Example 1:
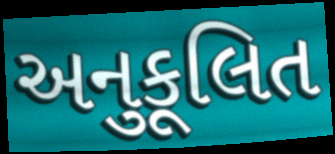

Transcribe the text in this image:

અનુકૂલિત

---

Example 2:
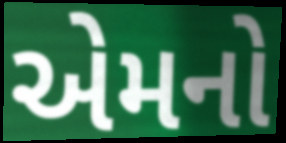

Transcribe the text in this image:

એમનો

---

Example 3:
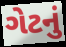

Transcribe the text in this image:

ગેટનું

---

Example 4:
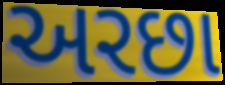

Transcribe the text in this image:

અરછા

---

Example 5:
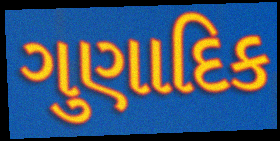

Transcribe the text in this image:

ગુણાદિક